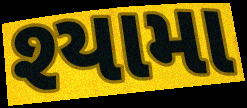
શ્યામા